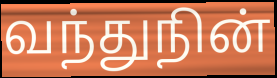
வந்துநின்